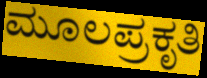
ಮೂಲಪ್ರಕೃತಿ